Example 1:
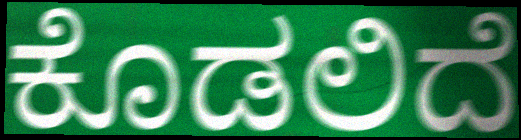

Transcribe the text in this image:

ಕೊಡಲಿದೆ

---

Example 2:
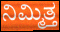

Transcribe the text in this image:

ನಿಮ್ಮಿತ್ತ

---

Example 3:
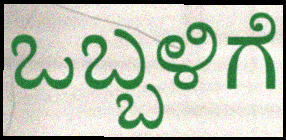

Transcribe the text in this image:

ಒಬ್ಬಳಿಗೆ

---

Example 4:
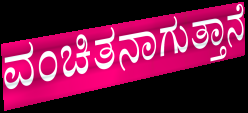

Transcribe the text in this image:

ವಂಚಿತನಾಗುತ್ತಾನೆ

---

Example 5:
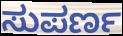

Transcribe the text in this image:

ಸುಪರ್ಣ